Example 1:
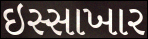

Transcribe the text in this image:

ઇસ્સાખાર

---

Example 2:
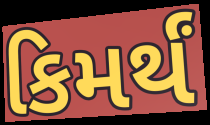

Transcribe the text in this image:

કિમર્થં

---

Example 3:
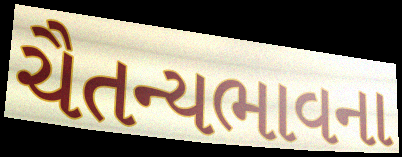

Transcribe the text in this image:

ચૈતન્યભાવના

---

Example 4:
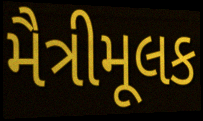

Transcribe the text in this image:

મૈત્રીમૂલક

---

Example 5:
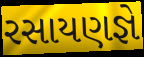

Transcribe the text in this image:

રસાયણજ્ઞે